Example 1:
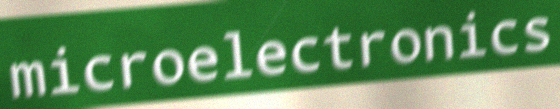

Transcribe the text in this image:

microelectronics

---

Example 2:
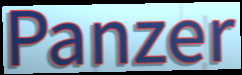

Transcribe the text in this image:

Panzer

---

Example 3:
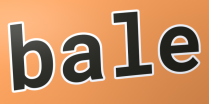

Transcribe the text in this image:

bale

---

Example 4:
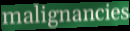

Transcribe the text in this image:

malignancies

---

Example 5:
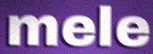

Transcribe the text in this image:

mele